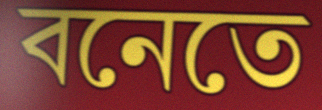
বনেতে